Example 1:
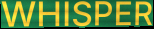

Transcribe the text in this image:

WHISPER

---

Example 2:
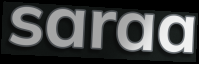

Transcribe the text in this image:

saraa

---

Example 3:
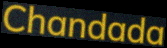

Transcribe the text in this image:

Chandada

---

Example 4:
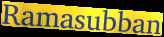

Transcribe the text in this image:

Ramasubban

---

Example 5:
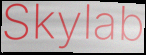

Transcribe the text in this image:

Skylab